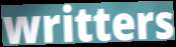
writters